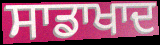
ਸਾਡਾਖਾਦ